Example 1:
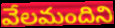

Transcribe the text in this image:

వేలమందిని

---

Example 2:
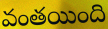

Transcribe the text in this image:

వంతయింది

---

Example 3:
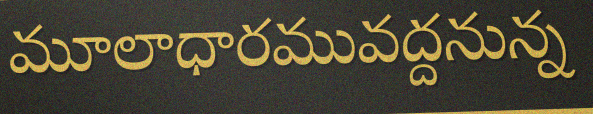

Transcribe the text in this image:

మూలాధారమువద్దనున్న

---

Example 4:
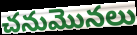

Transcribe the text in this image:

చనుమొనలు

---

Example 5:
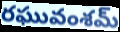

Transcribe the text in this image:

రఘువంశమ్